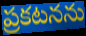
ప్రకటనను